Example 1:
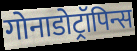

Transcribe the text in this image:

गोनाडोट्रॉपिन्स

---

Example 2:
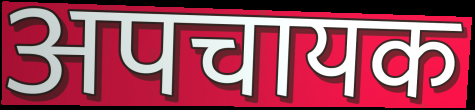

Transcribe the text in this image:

अपचायक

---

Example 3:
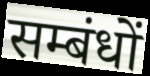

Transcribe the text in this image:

सम्बंधों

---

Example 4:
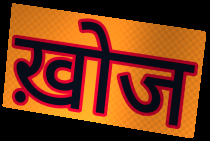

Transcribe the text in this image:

ख़ोज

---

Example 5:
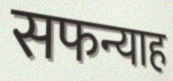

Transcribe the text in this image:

सफन्याह